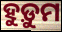
ହୁଡ଼ୁମ